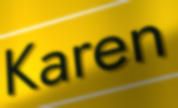
Karen